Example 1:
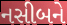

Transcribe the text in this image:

નસીબને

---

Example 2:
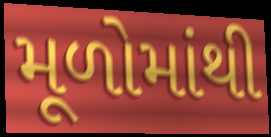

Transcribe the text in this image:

મૂળોમાંથી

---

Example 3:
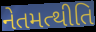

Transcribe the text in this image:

નેતમત્થીતિ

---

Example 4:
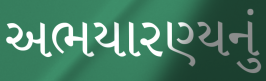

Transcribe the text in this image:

અભયારણ્યનું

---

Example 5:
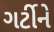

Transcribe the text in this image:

ગર્ટીને